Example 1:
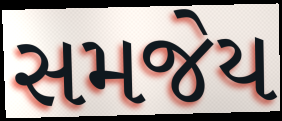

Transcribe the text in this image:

સમજેય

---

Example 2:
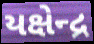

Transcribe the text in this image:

યક્ષેન્દ્ર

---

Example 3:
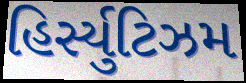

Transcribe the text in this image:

હિર્સ્યુટિઝમ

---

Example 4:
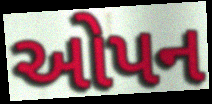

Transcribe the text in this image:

ઓપન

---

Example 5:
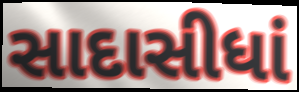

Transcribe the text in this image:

સાદાસીધાં